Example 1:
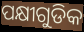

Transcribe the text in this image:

ପକ୍ଷୀଗୁଡିକ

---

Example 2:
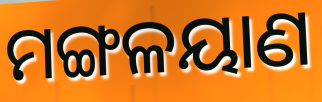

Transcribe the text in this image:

ମଙ୍ଗଳୟାଣ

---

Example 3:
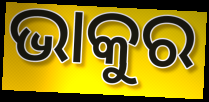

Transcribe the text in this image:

ଭାକୁର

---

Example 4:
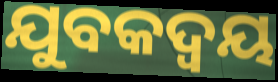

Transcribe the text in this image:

ଯୁବକଦ୍ୱୟ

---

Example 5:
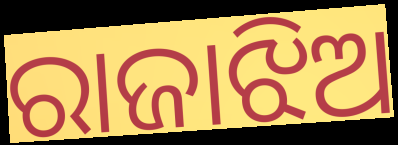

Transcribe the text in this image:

ରାଜାଝିଅ